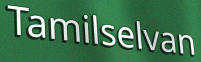
Tamilselvan